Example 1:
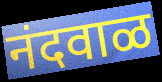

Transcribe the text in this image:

नंदवाळ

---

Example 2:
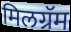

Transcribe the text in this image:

मिलग्रॅम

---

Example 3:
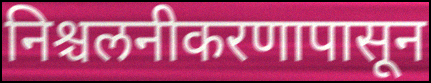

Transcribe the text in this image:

निश्चलनीकरणापासून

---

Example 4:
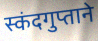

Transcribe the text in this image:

स्कंदगुप्ताने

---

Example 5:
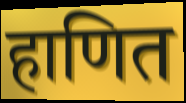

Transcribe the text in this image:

हाणित